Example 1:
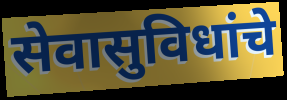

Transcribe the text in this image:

सेवासुविधांचे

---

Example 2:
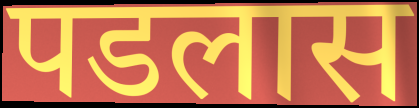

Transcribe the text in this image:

पडलास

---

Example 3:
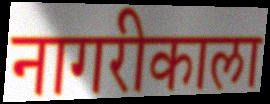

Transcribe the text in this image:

नागरीकाला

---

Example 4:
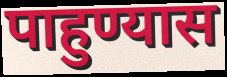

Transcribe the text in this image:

पाहुण्यास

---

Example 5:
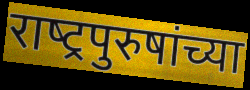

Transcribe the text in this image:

राष्ट्रपुरुषांच्या